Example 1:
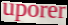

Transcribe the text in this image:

uporer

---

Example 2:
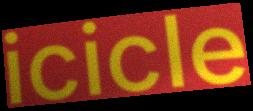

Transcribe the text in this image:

icicle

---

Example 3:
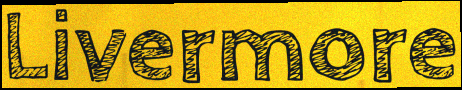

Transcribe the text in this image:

Livermore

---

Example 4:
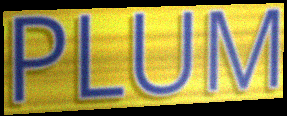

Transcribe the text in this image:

PLUM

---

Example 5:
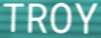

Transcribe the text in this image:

TROY